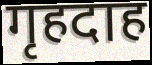
गृहदाह